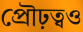
প্রৌঢ়ত্বও